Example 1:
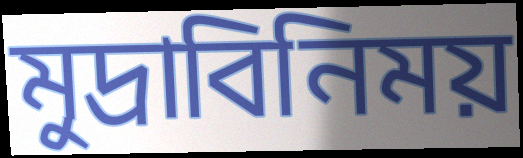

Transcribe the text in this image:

মুদ্রাবিনিময়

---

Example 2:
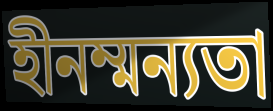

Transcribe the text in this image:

হীনম্মন্যতা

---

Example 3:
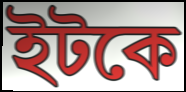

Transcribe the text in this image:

ইটকে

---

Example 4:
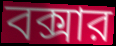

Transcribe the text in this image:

বক্সার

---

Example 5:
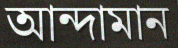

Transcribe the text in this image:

আন্দামান